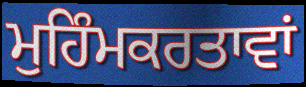
ਮੁਹਿੰਮਕਰਤਾਵਾਂ